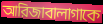
আরিজাবালাগাকে